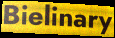
Bielinary